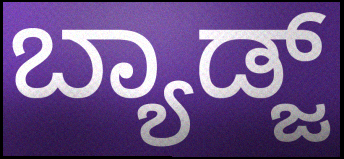
ಬ್ಯಾಡ್ಜ್